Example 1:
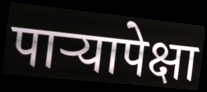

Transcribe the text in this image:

पाऱ्यापेक्षा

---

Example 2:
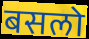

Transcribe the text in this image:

बसलो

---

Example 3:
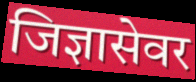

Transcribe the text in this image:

जिज्ञासेवर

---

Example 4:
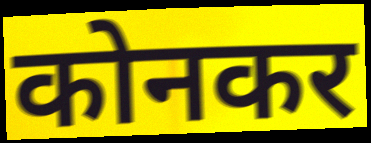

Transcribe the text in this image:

कोनकर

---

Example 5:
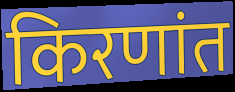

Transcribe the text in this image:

किरणांत